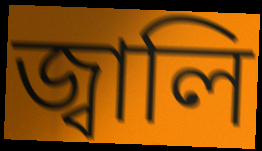
জ্বালি